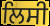
ਲਿਸੀ